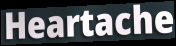
Heartache